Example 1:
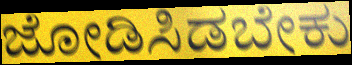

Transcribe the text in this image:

ಜೋಡಿಸಿಡಬೇಕು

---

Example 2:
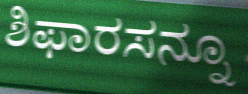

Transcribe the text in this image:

ಶಿಫಾರಸನ್ನೂ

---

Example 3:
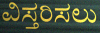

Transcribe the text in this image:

ವಿಸ್ತರಿಸಲು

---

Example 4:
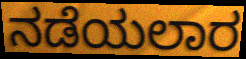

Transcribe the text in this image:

ನಡೆಯಲಾರ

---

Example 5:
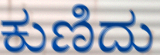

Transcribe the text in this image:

ಕುಣಿದು